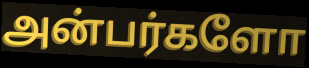
அன்பர்களோ